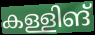
കള്ളിങ്